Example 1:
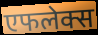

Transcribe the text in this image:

एफलेक्स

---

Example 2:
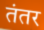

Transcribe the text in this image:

तंतर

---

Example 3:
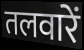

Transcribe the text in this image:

तलवारें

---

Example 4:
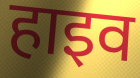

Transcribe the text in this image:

हाइव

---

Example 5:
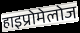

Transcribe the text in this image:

हाइप्रोमेलोज